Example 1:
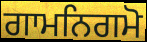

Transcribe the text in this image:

ਗਾਮਨਿਗਮੋ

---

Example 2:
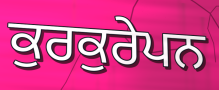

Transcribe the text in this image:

ਕੁਰਕੁਰੇਪਨ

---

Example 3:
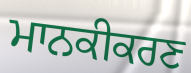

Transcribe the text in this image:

ਮਾਨਕੀਕਰਣ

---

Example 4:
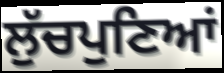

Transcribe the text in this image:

ਲੁੱਚਪੁਣਿਆਂ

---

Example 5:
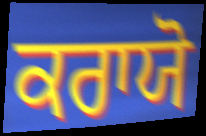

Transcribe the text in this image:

ਕਰਾਯੋ